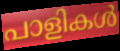
പാളികൾ